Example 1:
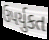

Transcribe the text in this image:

ઉપર્યુકત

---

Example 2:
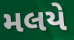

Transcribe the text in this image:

મલયે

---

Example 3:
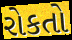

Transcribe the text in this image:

રોકતો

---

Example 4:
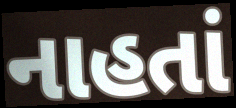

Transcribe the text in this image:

નાહતાં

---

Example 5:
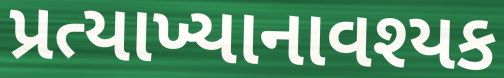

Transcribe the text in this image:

પ્રત્યાખ્યાનાવશ્યક